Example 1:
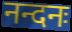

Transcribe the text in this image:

नन्दनः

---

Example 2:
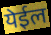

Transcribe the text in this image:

येईल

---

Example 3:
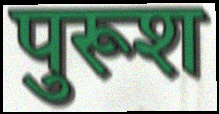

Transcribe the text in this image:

पुरूश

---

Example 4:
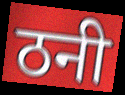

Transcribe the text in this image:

ठनी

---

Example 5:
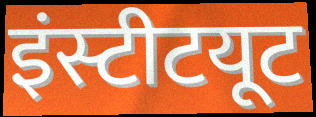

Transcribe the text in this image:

इंस्‍टीटयूट